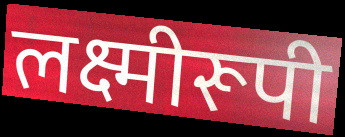
लक्ष्मीरूपी